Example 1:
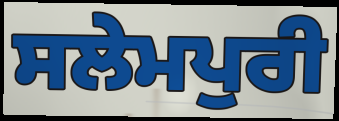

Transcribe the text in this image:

ਸਲੇਮਪੁਰੀ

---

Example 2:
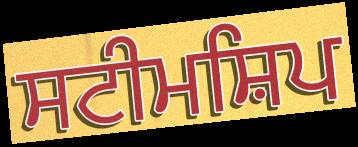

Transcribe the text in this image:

ਸਟੀਮਸ਼ਿਪ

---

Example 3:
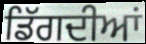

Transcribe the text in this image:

ਡਿੱਗਦੀਆਂ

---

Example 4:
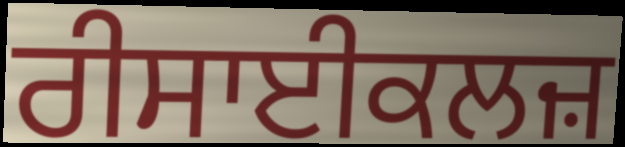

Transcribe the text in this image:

ਰੀਸਾਈਕਲਜ਼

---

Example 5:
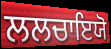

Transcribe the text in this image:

ਲਲਚਾਇਯੋ